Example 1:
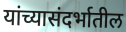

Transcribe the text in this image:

यांच्यासंदर्भातील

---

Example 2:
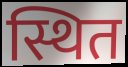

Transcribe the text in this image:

स्थित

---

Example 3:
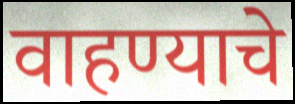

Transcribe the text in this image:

वाहण्याचे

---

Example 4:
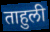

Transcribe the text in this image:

ताहुली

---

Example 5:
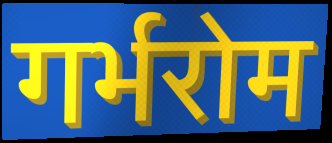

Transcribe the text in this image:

गर्भरोम